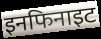
इनफिनाइट